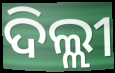
ଦିଲ୍ଲୀ